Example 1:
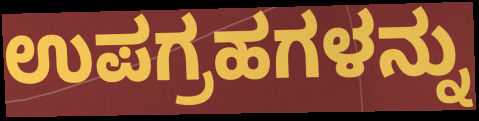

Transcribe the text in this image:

ಉಪಗ್ರಹಗಳನ್ನು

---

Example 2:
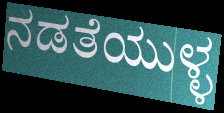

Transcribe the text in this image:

ನಡತೆಯುಳ್ಳ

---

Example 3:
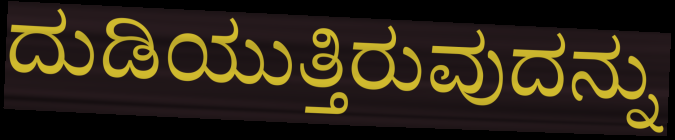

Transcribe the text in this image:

ದುಡಿಯುತ್ತಿರುವುದನ್ನು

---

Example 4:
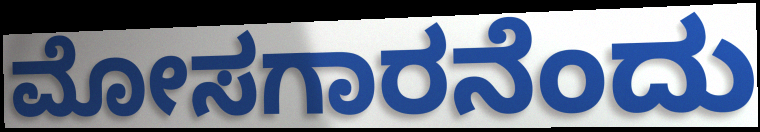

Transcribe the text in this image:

ಮೋಸಗಾರನೆಂದು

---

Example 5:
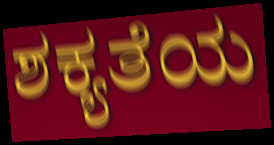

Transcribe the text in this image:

ಶಕ್ಯತೆಯ